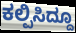
ಕಲ್ಪಿಸಿದ್ದೂ